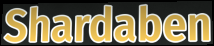
Shardaben